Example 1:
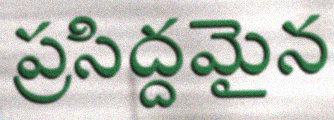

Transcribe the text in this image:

ప్రసిద్దమైన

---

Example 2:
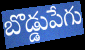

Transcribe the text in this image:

బొడ్డుపేగు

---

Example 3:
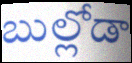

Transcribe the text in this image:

బుల్లోడా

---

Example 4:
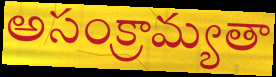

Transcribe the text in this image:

అసంక్రామ్యతా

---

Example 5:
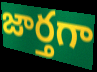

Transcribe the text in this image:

జార్తగా